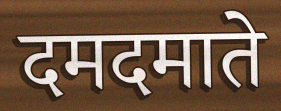
दमदमाते